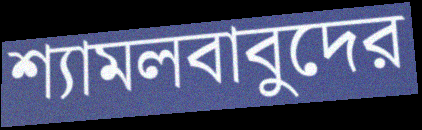
শ্যামলবাবুদের